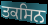
ਤਕਸਿਨ